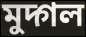
মুদ্গল